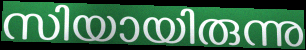
സിയായിരുന്നു